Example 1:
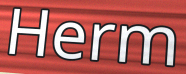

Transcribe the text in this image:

Herm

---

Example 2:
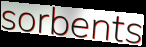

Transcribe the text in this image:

sorbents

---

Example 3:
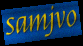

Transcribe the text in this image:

samjvo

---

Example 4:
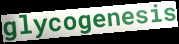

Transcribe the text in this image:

glycogenesis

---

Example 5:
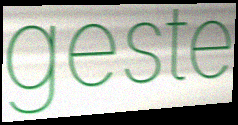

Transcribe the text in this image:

geste